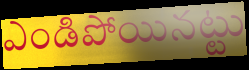
ఎండిపోయినట్టు